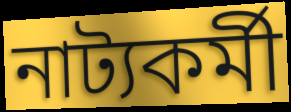
নাট্যকৰ্মী